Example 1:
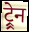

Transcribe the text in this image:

ट्र्रेन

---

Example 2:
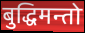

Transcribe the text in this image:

बुद्धिमन्तो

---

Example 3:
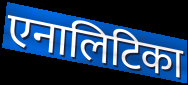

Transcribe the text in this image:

एनालिटिका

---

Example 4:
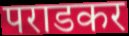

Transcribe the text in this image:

पराडकर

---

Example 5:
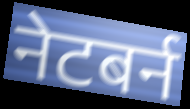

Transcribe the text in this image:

नेटबर्न